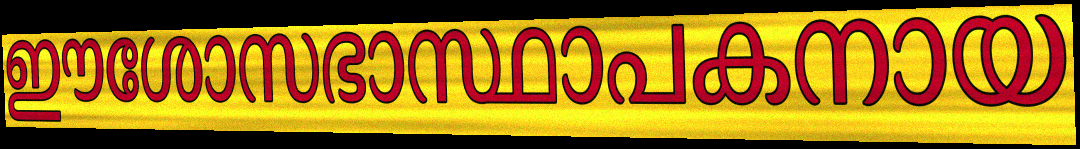
ഈശോസഭാസ്ഥാപകനായ